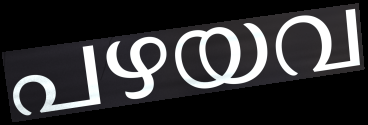
പഴയവ